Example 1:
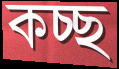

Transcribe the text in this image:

কচ্ছ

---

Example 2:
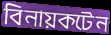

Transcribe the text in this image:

বিনায়কটেন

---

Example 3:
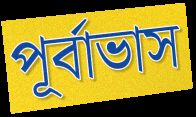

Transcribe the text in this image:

পূৰ্বাভাস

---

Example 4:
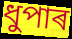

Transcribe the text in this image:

ধুপাৰ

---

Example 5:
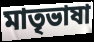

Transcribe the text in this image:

মাতৃভাষা